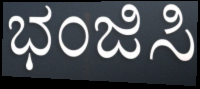
ಭಂಜಿಸಿ